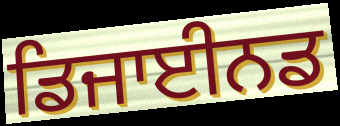
ਡਿਜਾਈਨਡ